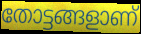
തോട്ടങ്ങളാണ്